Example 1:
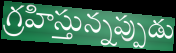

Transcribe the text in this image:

గ్రహిస్తున్నప్పుడు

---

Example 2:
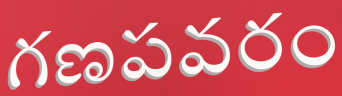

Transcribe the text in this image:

గణపవరం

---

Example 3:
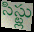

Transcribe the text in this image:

సిస్ట్లు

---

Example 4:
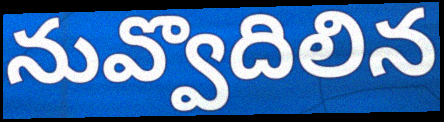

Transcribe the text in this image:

నువ్వొదిలిన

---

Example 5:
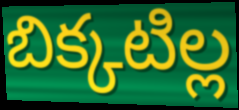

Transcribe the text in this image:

బిక్కటిల్ల